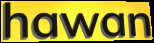
hawan